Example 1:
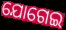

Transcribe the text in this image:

ଯୋଗେଇ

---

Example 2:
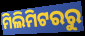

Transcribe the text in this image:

ମିଲିମିଟରରୁ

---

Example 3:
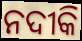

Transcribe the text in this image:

ନଦୀକି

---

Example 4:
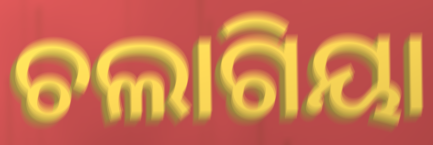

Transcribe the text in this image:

ଚଲାଗିୟା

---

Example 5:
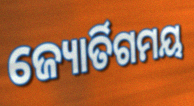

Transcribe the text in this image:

ଜ୍ୟୋର୍ତିଗମୟ